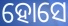
ହୋସେ